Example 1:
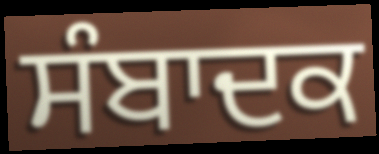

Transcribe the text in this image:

ਸੰਬਾਦਕ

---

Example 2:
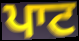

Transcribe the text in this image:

ਪਾਟ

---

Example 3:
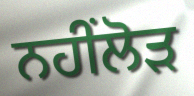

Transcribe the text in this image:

ਨਹੀਂਲੋੜ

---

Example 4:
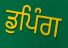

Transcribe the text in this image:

ਡੁਪਿੰਗ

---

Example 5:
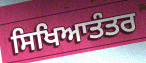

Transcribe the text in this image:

ਸਿਖਿਆਤੰਤਰ